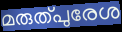
മരുത്പുരേശ